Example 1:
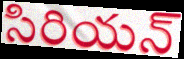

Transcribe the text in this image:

సిరియన్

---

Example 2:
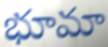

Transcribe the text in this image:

భూమా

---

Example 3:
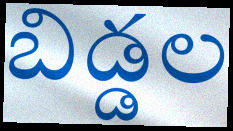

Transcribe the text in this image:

బిడ్డల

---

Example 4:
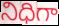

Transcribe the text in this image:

నిధిగా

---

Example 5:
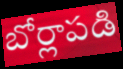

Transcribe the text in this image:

బోర్లాపడి